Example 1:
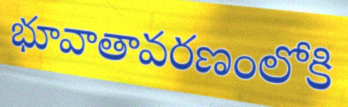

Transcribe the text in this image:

భూవాతావరణంలోకి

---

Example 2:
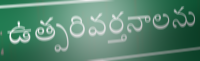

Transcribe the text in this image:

ఉత్పరివర్తనాలను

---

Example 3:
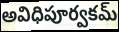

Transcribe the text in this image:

అవిధిపూర్వకమ్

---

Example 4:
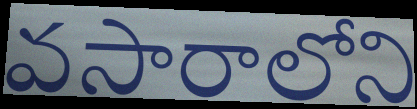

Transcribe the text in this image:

వసారాలోని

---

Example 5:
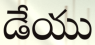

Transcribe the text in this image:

డేయు